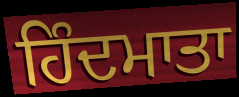
ਹਿੰਦਮਾਤਾ